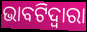
ଭାବଟିଦ୍ୱାରା